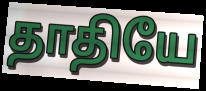
தாதியே